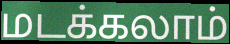
மடக்கலாம்